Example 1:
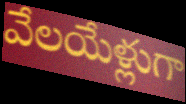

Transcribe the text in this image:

వేలయేళ్లుగా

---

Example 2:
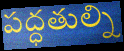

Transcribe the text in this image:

పద్ధతుల్ని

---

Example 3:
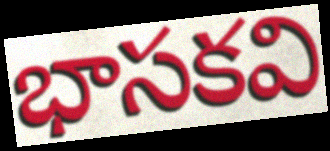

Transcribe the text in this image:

భాసకవి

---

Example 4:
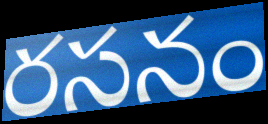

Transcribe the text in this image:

రసనం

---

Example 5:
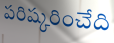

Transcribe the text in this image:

పరిష్కరించేది